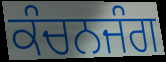
ਕੰਚਨਜੰਗ